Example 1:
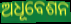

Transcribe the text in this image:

ଅଧୂବେଶନ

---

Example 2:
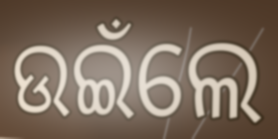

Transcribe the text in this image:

ଉଇଁଲେ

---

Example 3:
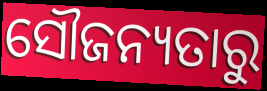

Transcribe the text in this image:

ସୌଜନ୍ୟତାରୁ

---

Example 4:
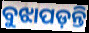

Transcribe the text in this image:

ବୁଝାପଡ଼ନ୍ତି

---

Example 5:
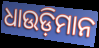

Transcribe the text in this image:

ଧାଉଡ଼ିମାନ